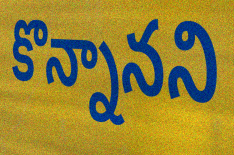
కొన్నానని